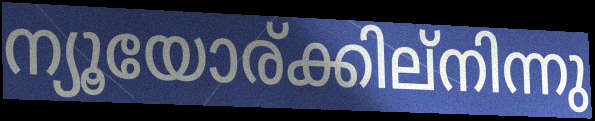
ന്യൂയോര്ക്കില്നിന്നു